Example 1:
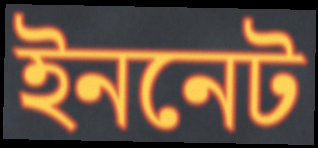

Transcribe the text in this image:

ইননেট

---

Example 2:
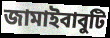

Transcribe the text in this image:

জামাইবাবুটি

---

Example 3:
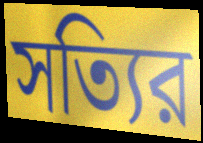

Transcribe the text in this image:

সত্যির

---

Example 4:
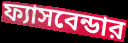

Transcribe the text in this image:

ফ্যাসবেন্ডার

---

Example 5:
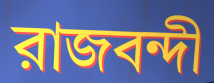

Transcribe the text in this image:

রাজবন্দী